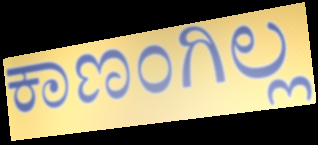
ಕಾಣಂಗಿಲ್ಲ